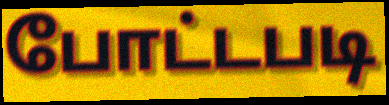
போட்டபடி